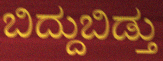
ಬಿದ್ದುಬಿಡ್ತು